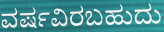
ವರ್ಷವಿರಬಹುದು